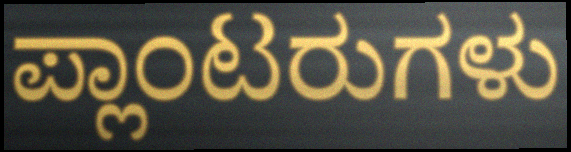
ಪ್ಲಾಂಟರುಗಳು